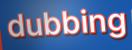
dubbing